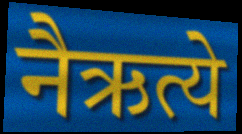
नैऋत्ये